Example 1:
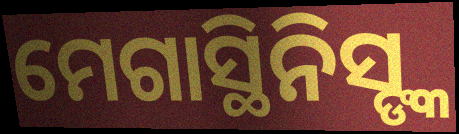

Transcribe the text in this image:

ମେଗାସ୍ଥିନିସ୍ଙ୍କ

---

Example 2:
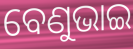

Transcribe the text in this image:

ବେଣୁଭାଇ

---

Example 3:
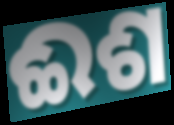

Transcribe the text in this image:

ଈଶ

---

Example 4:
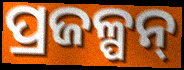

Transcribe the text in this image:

ପ୍ରଜଳ୍ପନ୍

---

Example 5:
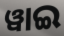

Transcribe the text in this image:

ୱାଇ